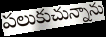
పలుకుచున్నాను